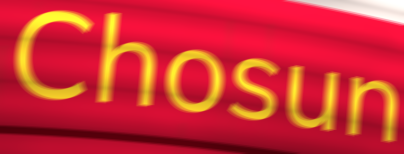
Chosun